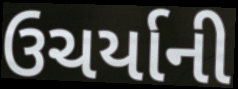
ઉચર્યાની